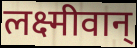
लक्ष्मीवान्